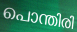
പൊന്തിരി